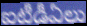
ఐటీడీఏలు